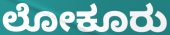
ಲೋಕೂರು